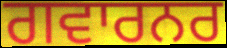
ਗਵਾਰਨਰ